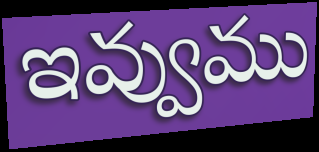
ఇవ్వుము